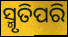
ସ୍ମୃତିପରି